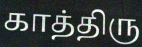
காத்திரு